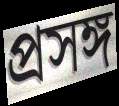
প্রসঙ্গ